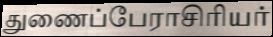
துணைப்பேராசிரியர்